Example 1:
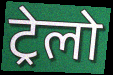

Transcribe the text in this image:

ट्रेलो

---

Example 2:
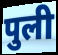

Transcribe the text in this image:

पुली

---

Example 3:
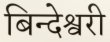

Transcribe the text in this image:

बिन्देश्वरी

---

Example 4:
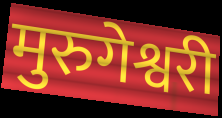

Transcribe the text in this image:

मुरुगेश्वरी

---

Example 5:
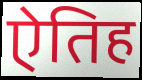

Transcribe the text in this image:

ऐतिह